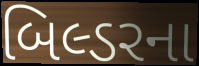
બિલ્ડરના